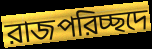
রাজপরিচ্ছদে